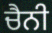
ਚੈਨੀ